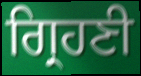
ਗ੍ਰਿਹਣੀ